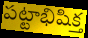
పట్టాభిషిక్త